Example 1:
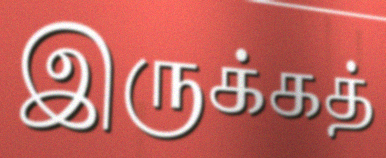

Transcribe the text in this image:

இருக்கத்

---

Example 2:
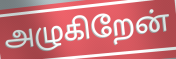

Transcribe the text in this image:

அழுகிறேன்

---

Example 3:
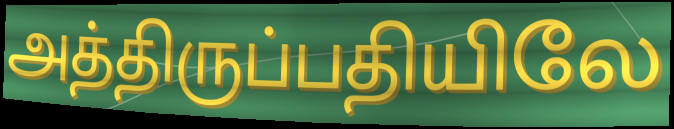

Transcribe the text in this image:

அத்திருப்பதியிலே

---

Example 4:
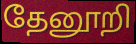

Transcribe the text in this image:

தேனூறி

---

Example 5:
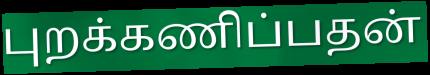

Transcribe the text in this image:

புறக்கணிப்பதன்